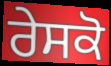
ਰੇਸਕੋ